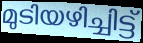
മുടിയഴിച്ചിട്ട്